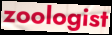
zoologist